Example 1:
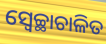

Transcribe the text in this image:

ସ୍ୱେଚ୍ଛାଚାଳିତ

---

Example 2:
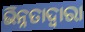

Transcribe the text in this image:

ଭିନ୍ନତାଦ୍ୱାରା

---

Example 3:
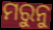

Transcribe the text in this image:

ମରୁନୁ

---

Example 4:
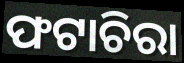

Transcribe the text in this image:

ଫଟାଚିରା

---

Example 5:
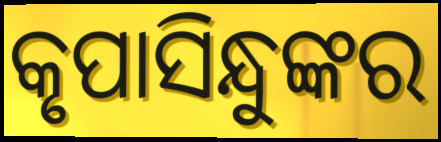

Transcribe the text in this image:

କୃପାସିନ୍ଧୁଙ୍କର